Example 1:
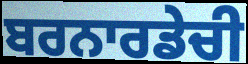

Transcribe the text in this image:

ਬਰਨਾਰਡੇਚੀ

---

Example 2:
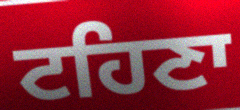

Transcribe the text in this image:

ਟਹਿਣਾ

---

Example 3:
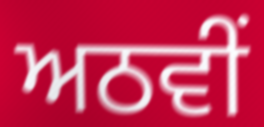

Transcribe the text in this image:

ਅਠਵੀਂ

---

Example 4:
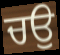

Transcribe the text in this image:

ਚਉ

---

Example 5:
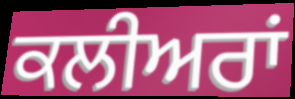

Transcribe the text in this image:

ਕਲੀਅਰਾਂ